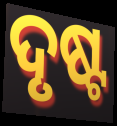
ଦୃଷ୍ଟ